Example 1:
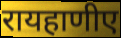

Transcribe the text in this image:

रायहाणीए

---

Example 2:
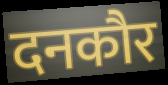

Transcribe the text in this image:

दनकौर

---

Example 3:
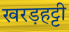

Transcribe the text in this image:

खरड़हट्टी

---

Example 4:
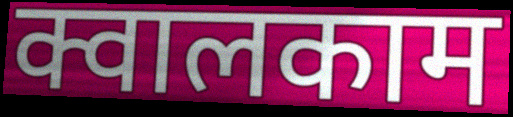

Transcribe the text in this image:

क्वालकाम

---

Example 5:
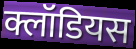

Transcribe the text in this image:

क्लॉडियस